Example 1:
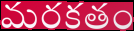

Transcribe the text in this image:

మరకతం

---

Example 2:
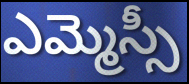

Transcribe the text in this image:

ఎమ్మెస్సీ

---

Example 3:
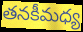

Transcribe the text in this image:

తనకీమధ్య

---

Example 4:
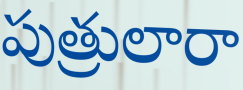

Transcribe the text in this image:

పుత్రులారా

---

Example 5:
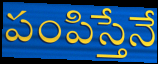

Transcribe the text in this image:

పంపిస్తేనే